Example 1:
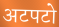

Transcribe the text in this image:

अटपटो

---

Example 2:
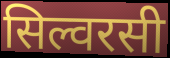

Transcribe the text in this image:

सिल्वरसी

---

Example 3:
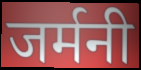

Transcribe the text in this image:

जर्मनी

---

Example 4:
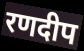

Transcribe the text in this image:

रणदीप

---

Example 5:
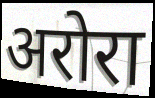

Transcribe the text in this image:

अरोरा